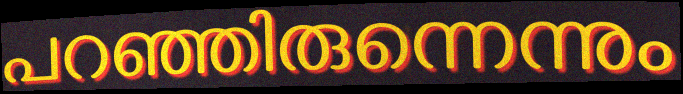
പറഞ്ഞിരുന്നെന്നും